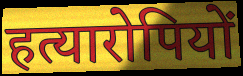
हत्‍यारोपियों